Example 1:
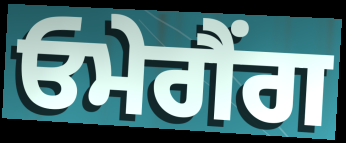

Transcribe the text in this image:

ਓਮੇਗੈਂਗ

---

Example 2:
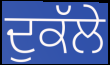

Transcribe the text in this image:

ਦੁਕੱਲੇ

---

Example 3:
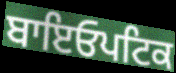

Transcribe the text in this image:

ਬਾਇਓਪਟਿਕ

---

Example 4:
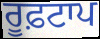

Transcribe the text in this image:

ਰੂਫ਼ਟਾਪ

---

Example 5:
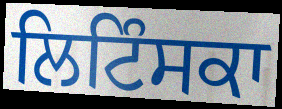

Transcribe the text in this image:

ਲਿਟਿੰਸਕਾ